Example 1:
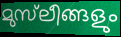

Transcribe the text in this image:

മുസ്‌ലീങ്ങളും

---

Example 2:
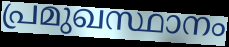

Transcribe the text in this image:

പ്രമുഖസ്ഥാനം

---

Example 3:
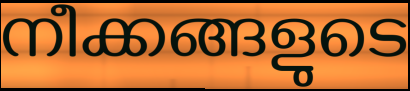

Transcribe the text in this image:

നീക്കങ്ങളുടെ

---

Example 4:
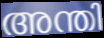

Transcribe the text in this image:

അന്തി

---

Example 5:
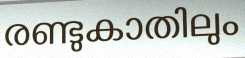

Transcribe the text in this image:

രണ്ടുകാതിലും